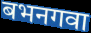
बभनगवा